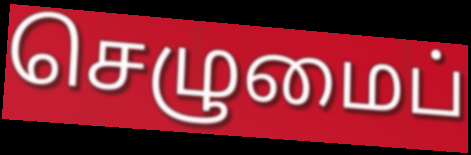
செழுமைப்